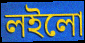
লইলো